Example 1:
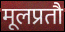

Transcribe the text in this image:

मूलप्रतौ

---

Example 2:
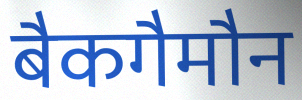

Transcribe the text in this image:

बैकगैमौन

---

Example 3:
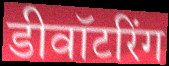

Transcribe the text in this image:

डीवॉटरिंग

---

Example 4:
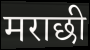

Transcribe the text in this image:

मराछी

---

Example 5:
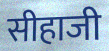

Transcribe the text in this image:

सीहाजी